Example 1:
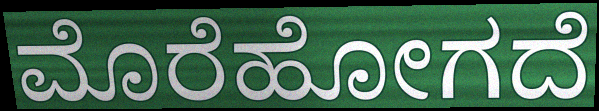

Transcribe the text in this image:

ಮೊರೆಹೋಗದೆ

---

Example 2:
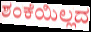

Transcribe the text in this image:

ಶಂಕೆಯಿಲ್ಲದ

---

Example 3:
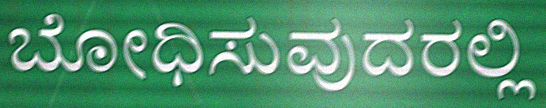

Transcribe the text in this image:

ಬೋಧಿಸುವುದರಲ್ಲಿ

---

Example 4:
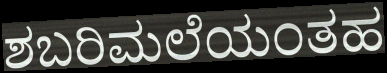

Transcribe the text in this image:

ಶಬರಿಮಲೆಯಂತಹ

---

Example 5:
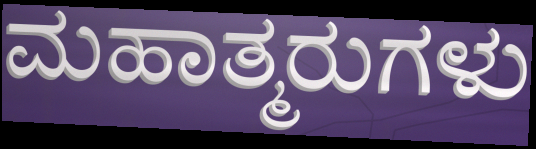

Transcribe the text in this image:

ಮಹಾತ್ಮರುಗಳು